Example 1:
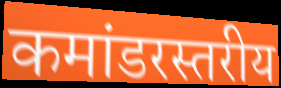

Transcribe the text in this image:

कमांडरस्तरीय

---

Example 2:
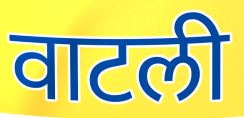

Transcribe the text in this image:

वाटली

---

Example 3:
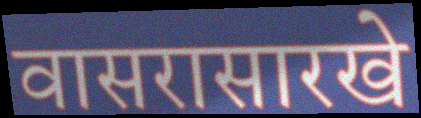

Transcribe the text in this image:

वासरासारखे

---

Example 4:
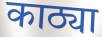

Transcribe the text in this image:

काठ्या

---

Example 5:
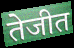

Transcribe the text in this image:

तेजीत